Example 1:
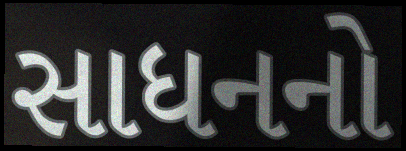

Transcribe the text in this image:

સાધનનો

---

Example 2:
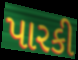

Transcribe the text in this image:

પારકી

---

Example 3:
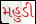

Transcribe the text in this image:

મહુડી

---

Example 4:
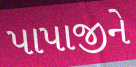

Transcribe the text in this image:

પાપાજીને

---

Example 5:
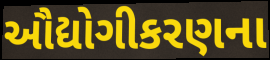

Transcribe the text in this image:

ઔદ્યોગીકરણના